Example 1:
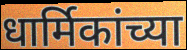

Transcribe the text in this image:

धार्मिकांच्या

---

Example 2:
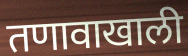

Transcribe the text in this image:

तणावाखाली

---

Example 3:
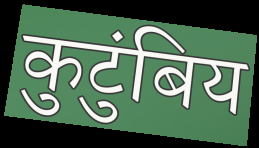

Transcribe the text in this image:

कुटुंबिय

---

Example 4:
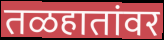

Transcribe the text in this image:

तळहातांवर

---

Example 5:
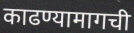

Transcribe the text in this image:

काढण्यामागची